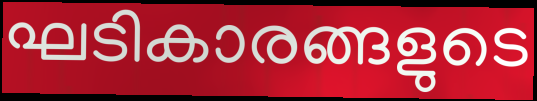
ഘടികാരങ്ങളുടെ